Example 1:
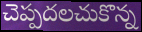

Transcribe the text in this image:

చెప్పదలచుకొన్న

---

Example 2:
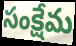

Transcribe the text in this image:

సంక్షేమ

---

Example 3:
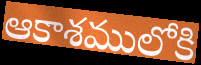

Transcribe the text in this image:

ఆకాశములోకి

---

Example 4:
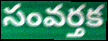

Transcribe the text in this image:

సంవర్తక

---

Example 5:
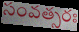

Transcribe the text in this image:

సంవత్సరః